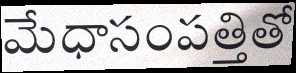
మేధాసంపత్తితో